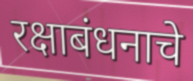
रक्षाबंधनाचे